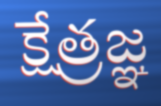
క్షేత్రజ్ఞ